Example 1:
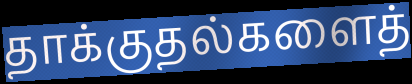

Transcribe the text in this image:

தாக்குதல்களைத்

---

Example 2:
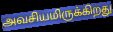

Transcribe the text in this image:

அவசியமிருக்கிறது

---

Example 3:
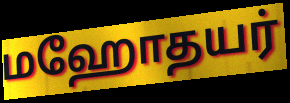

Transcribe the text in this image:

மஹோதயர்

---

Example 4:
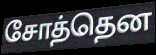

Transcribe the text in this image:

சோத்தென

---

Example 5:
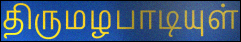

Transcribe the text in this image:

திருமழபாடியுள்